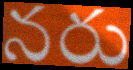
నరు